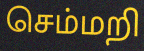
செம்மறி